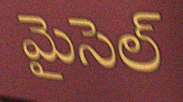
మైసెల్